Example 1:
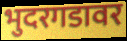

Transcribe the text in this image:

भुदरगडावर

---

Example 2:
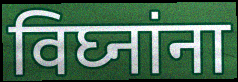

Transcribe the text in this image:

विघ्नांना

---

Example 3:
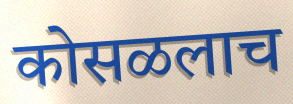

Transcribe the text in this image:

कोसळलाच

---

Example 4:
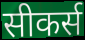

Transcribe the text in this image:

सीकर्स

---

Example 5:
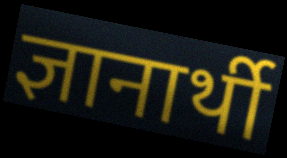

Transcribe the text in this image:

ज्ञानार्थी